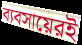
ব্যবসায়েরই